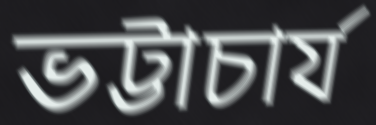
ভট্টাচাৰ্য